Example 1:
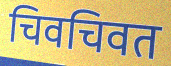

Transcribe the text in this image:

चिवचिवत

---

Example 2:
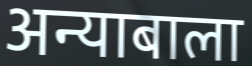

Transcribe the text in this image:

अन्याबाला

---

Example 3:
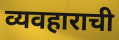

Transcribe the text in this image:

व्यवहाराची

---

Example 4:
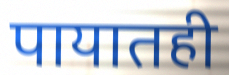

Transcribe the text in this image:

पायातही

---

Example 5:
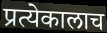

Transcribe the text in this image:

प्रत्येकालाच